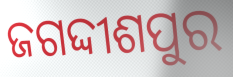
ଜଗଦ୍ଦୀଶପୁର